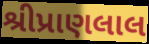
શ્રીપ્રાણલાલ